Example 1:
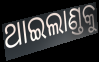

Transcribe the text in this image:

ଥାଇଲାଣ୍ଡକୁ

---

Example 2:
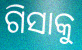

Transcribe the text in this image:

ଗିସାକୁ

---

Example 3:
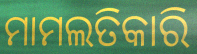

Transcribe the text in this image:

ମାମଲତିକାରି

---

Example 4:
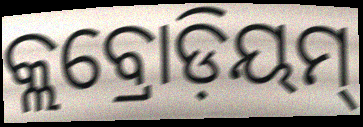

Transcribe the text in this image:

କ୍ଲବ୍ରୋଡ଼ିୟମ୍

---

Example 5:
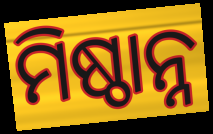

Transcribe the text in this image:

ମିଷ୍ଠାନ୍ନ